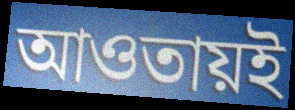
আওতায়ই